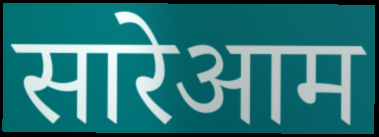
सारेआम